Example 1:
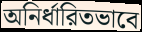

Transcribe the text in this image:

অনির্ধারিতভাবে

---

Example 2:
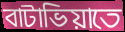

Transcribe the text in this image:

বাটাভিয়াতে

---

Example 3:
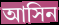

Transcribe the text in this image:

আসিন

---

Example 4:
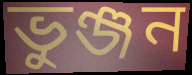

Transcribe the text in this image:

ভুঞ্জন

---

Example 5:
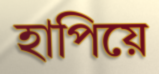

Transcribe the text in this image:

হাপিয়ে